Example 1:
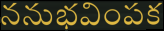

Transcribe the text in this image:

ననుభవింపక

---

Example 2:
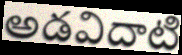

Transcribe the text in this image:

అడవిదాటి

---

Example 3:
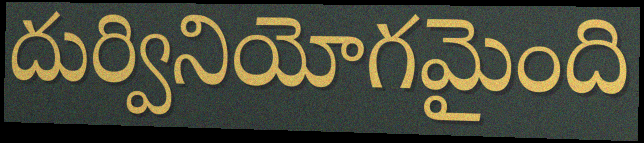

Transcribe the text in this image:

దుర్వినియోగమైంది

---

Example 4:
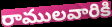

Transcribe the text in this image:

రాములవారికి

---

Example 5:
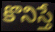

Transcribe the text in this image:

కొనిస్తే